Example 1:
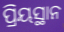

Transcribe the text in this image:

ପ୍ରିୟସ୍ଥାନ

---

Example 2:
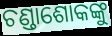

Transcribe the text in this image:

ଚଣ୍ଡାଶୋକଙ୍କୁ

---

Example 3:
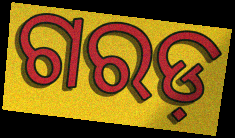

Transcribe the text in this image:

ଗରଡ଼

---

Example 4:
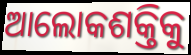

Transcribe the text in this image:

ଆଲୋକଶକ୍ତିକୁ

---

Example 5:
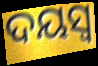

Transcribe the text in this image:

ଦୟସ୍ଵ